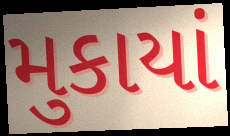
મુકાયાં